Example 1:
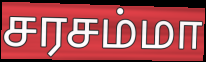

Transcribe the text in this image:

சரசம்மா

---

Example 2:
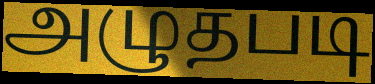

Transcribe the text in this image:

அழுதபடி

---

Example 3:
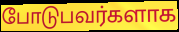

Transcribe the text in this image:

போடுபவர்களாக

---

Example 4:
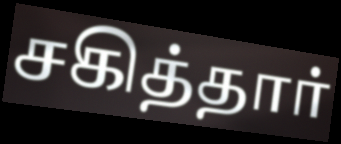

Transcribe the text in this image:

சகித்தார்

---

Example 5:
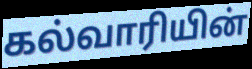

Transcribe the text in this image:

கல்வாரியின்